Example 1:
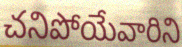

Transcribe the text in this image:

చనిపోయేవారిని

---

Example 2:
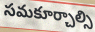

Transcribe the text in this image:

సమకూర్చాల్సి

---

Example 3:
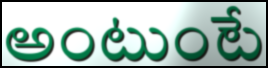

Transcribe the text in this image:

అంటుంటే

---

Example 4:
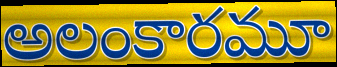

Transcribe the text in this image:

అలంకారమూ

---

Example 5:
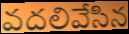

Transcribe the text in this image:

వదలివేసిన